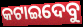
କଟାଇଦେବୁ